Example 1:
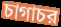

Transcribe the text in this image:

চাগাচর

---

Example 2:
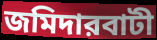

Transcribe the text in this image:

জমিদারবাটী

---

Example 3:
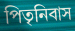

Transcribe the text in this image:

পিতৃনিবাস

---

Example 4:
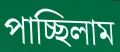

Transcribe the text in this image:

পাচ্ছিলাম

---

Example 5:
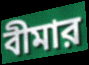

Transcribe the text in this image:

বীমার